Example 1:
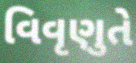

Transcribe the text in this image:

વિવૃણુતે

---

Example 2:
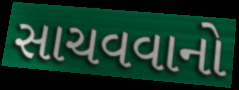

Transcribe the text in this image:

સાચવવાનો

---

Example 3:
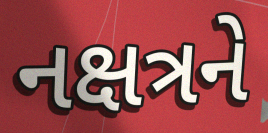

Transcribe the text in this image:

નક્ષત્રને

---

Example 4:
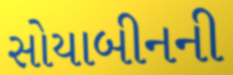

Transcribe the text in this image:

સોયાબીનની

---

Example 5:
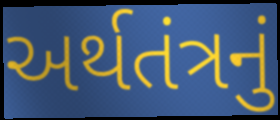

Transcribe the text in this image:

અર્થતંત્રનું